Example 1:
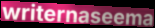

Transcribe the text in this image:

writernaseema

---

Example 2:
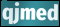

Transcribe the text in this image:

qjmed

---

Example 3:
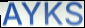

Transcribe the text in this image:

AYKS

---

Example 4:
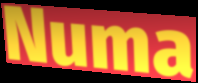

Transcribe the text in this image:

Numa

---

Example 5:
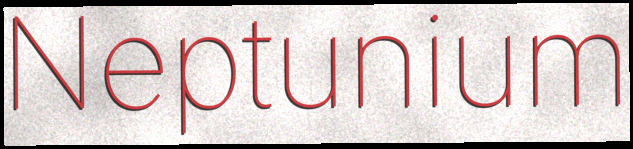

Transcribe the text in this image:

Neptunium